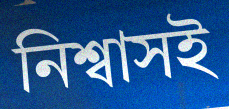
নিশ্বাসই